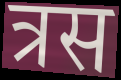
त्रस